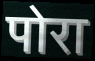
पोरा